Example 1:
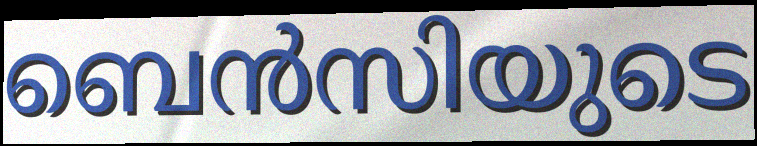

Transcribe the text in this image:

ബെൻസിയുടെ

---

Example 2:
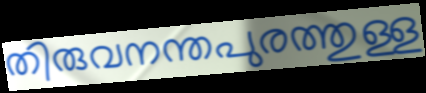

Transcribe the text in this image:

തിരുവനന്തപുരത്തുള്ള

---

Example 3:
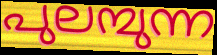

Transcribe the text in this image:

പുലമ്പുന്ന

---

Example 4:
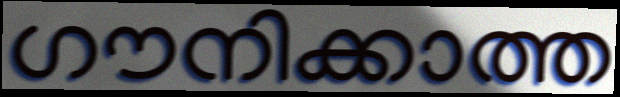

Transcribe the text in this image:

ഗൗനിക്കാത്ത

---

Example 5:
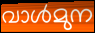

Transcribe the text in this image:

വാൾമുന